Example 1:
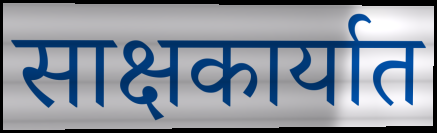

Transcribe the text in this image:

साक्षकार्यात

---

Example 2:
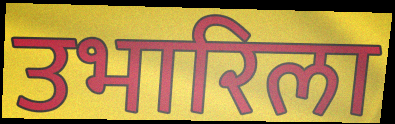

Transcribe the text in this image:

उभारिला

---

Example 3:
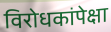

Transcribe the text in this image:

विरोधकांपेक्षा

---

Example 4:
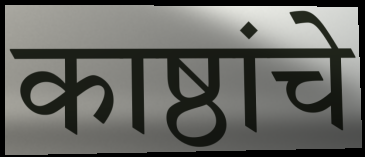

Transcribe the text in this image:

काष्ठांचे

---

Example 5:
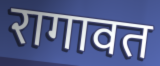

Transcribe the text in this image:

रागावत